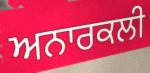
ਅਨਾਰਕਲੀ